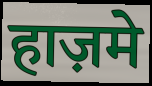
हाज़मे